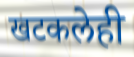
खटकलेही